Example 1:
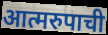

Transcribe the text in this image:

आत्मरुपाची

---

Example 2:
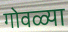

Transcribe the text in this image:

गोवळ्या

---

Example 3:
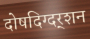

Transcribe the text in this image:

दोषदिग्दर्शन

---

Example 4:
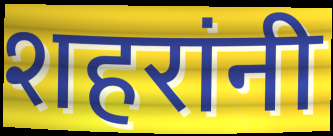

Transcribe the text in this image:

शहरांनी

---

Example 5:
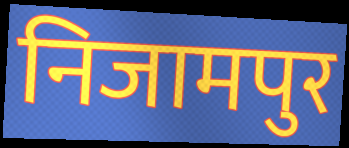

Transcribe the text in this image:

निजामपुर